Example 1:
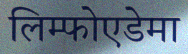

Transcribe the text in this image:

लिम्फोएडेमा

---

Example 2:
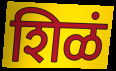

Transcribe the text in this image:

शिळं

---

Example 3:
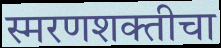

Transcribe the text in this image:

स्मरणशक्तीचा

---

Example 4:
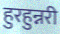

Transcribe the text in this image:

हुरहुन्नरी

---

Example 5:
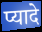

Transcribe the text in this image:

प्यादे